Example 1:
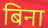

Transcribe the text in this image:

बिना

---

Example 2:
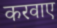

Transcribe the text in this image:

करवाए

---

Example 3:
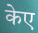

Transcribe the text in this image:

केए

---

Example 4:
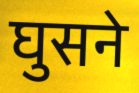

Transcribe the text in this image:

घुसने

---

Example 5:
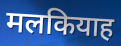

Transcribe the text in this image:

मलकियाह